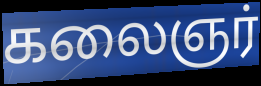
கலைஞர்